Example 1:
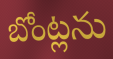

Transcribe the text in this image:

బోంట్లను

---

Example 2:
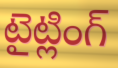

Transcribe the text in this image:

టైట్లింగ్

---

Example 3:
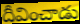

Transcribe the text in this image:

దీవించాడు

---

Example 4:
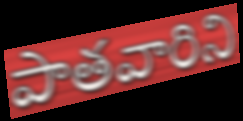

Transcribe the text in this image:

పాతవారిని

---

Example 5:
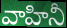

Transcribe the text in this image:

వాహినీ